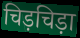
चिड़चिड़ा